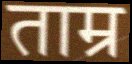
ताम्र